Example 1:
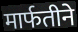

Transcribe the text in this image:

मार्फतीने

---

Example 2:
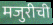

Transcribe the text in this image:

मजुरीची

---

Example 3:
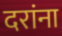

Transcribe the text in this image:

दरांना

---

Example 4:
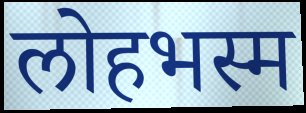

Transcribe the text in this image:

लोहभस्म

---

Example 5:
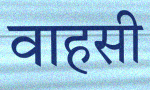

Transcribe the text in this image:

वाहसी